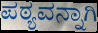
ಪಠ್ಯವನ್ನಾಗಿ